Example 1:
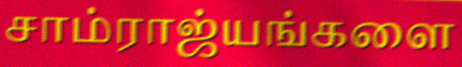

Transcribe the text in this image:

சாம்ராஜ்யங்களை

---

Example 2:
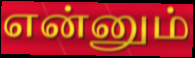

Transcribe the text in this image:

என்னும்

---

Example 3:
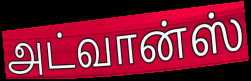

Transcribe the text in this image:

அட்வான்ஸ்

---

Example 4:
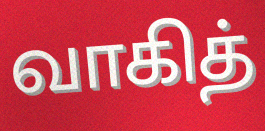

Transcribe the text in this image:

வாகித்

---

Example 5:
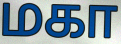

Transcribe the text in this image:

மகா